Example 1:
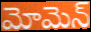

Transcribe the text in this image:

మోమెన్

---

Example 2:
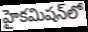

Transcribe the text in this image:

హైకమిషన్‌లో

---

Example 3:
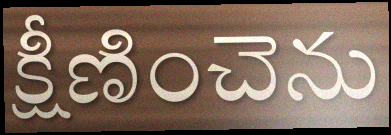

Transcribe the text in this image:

క్షీణించెను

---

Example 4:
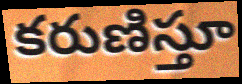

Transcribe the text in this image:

కరుణిస్తూ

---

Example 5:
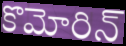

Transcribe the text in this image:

కొమోరిన్